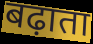
बढ़ाता